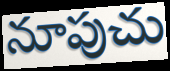
నూపుచు